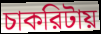
চাকরিটায়